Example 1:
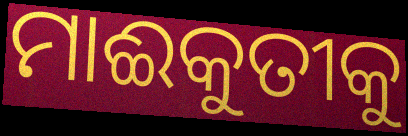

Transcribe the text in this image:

ମାଈକୁତୀକୁ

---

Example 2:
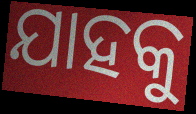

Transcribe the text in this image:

ଯାହକୁ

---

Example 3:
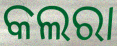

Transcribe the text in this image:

କଲରା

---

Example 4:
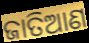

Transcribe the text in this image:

ଜାତିଆଣ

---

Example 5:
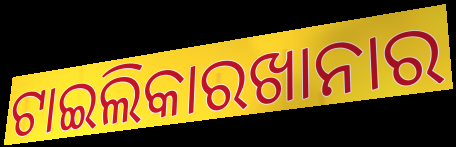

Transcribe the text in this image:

ଟାଇଲିକାରଖାନାର